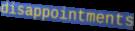
disappointments